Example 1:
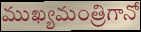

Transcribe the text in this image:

ముఖ్యమంత్రిగానో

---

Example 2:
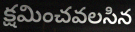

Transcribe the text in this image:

క్షమించవలసిన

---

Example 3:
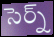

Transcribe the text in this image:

సెర్న్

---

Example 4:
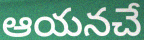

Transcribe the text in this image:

ఆయనచే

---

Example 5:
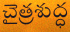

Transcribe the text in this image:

చైత్రశుద్ధ